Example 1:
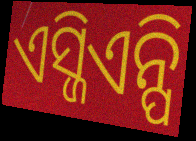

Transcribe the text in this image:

ଏସ୍ଜିଏନ୍ପି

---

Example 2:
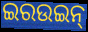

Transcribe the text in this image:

ଇରଉଇନ୍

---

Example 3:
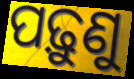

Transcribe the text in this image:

ପଢ଼ୁଣୁ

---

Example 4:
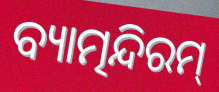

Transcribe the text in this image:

ବ୍ୟାତ୍ମନ୍ଦିରମ୍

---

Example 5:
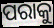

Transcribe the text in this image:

ପରାକୁ